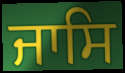
ਜਾਸਿ